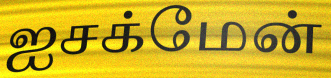
ஐசக்மேன்